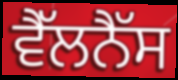
ਵੈੱਲਨੈੱਸ